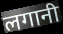
लगानी